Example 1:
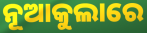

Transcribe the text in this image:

ନୂଆକୁଲାରେ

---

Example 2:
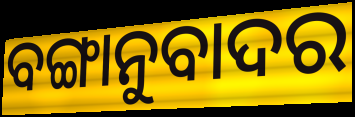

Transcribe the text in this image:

ବଙ୍ଗାନୁବାଦର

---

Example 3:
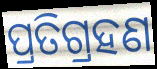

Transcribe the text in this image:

ପ୍ରତିଗ୍ରହଣ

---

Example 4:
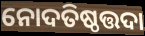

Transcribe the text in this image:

ନୋଦତିଷ୍ଠତ୍ତଦା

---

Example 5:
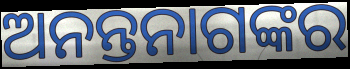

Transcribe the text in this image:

ଅନନ୍ତନାଗଙ୍କର